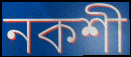
নকশী